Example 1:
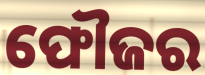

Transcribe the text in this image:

ଫୌଜର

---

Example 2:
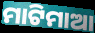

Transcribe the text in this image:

ମାଟିମାଆ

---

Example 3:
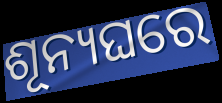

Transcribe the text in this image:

ଶୂନ୍ୟଘରେ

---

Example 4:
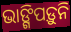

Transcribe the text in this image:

ଭାଙ୍ଗିପଡ଼ୁନି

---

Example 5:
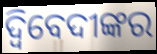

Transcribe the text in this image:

ଦ୍ଵିବେଦୀଙ୍କର